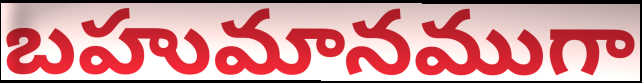
బహుమానముగా